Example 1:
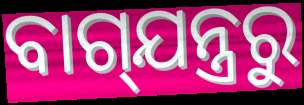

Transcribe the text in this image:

ବାଗ୍‌ଯନ୍ତ୍ରରୁ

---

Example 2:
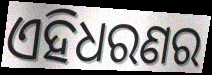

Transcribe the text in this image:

ଏହିଧରଣର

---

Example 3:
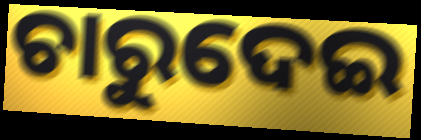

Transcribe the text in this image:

ଚାରୁଦେଇ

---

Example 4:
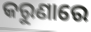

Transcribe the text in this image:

କରୁଣାରେ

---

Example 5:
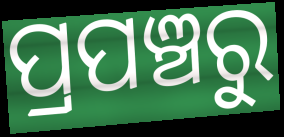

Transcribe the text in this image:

ପ୍ରପଞ୍ଚରୁ